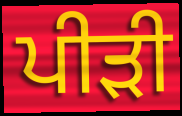
ਪੀੜੀ